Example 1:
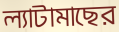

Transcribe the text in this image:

ল্যাটামাছের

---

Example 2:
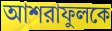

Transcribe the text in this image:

আশরাফুলকে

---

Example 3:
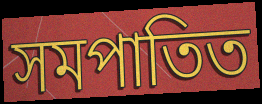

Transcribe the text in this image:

সমপাতিত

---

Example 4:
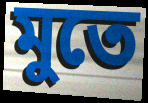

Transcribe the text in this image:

মুতে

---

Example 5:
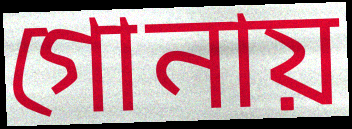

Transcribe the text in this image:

গোনায়